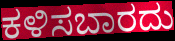
ಕಳಿಸಬಾರದು